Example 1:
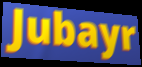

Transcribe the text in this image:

Jubayr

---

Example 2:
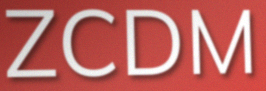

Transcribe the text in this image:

ZCDM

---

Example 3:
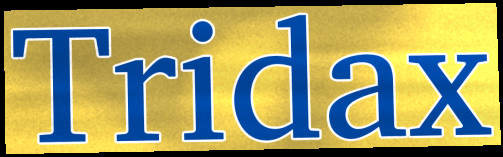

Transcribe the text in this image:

Tridax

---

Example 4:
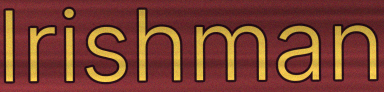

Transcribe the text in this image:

Irishman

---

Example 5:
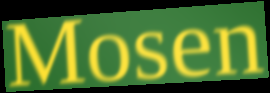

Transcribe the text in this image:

Mosen